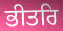
ਭੀਤਰਿ